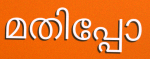
മതിപ്പോ